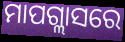
ମାପଗ୍ଲାସରେ